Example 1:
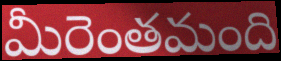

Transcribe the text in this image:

మీరెంతమంది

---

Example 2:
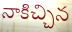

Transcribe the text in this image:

నాకిచ్చిన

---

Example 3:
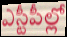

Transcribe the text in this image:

ఎస్టీపీల్లో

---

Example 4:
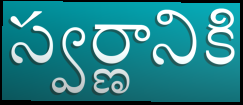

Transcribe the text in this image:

స్వర్ణానికి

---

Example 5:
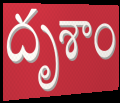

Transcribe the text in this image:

దృశాం